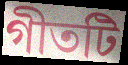
গীতটি